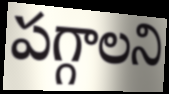
పగ్గాలని